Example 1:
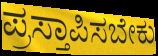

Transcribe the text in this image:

ಪ್ರಸ್ತಾಪಿಸಬೇಕು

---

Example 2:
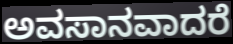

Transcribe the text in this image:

ಅವಸಾನವಾದರೆ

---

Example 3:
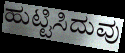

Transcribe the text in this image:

ಹುಟ್ಟಿಸಿದುವು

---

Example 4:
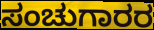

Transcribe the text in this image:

ಸಂಚುಗಾರರ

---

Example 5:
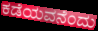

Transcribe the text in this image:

ಕಡೆಯವನೆಂದು